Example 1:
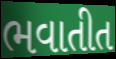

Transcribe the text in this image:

ભવાતીત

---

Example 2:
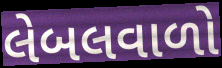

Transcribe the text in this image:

લેબલવાળો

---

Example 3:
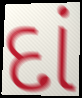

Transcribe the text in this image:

દાં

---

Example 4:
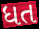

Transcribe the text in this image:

ધત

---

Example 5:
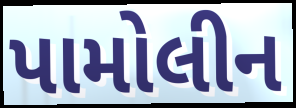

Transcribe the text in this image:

પામોલીન